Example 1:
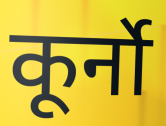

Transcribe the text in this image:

कूर्नो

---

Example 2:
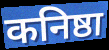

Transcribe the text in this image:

कनिष्ठा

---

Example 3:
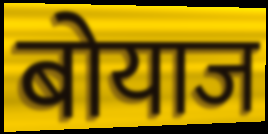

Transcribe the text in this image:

बोयाज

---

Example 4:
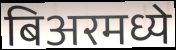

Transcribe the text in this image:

बिअरमध्ये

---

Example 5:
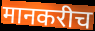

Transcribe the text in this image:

मानकरीच